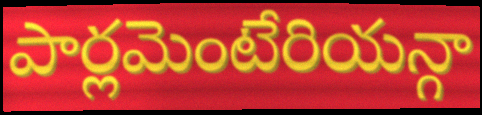
పార్లమెంటేరియన్గా